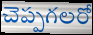
చెప్పగలరో